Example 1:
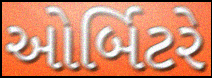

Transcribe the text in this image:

ઓર્બિટરે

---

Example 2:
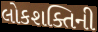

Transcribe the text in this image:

લોકશક્તિની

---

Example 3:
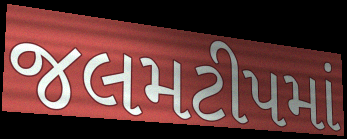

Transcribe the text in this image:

જલમટીપમાં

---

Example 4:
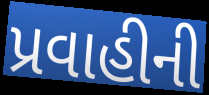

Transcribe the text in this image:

પ્રવાહીની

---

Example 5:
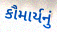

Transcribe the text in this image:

કૌમાર્યનું